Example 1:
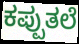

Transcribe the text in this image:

ಕಪ್ಪುತಲೆ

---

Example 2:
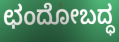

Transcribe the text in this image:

ಛಂದೋಬದ್ಧ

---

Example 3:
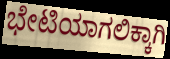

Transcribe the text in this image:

ಭೇಟಿಯಾಗಲಿಕ್ಕಾಗಿ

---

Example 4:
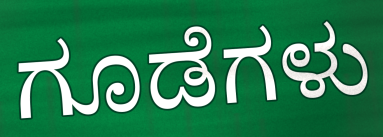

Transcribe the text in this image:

ಗೂಡೆಗಳು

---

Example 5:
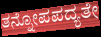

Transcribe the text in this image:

ತನ್ನೋಪಪದ್ಯತೇ